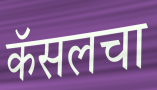
कॅसलचा